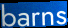
barns